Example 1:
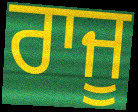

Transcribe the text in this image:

ਰਾਜੂ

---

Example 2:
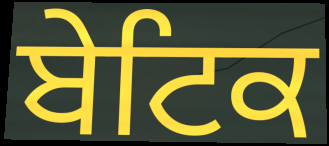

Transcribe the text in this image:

ਬੇਟਿਕ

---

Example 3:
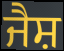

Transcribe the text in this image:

ਜੈਸ਼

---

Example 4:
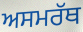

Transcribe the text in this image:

ਅਸਮਰੱਥ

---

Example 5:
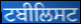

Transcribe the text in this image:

ਟਬੀਲਿਸਟ